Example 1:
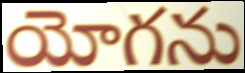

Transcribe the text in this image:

యోగను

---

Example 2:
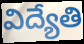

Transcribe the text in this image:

విద్యేతి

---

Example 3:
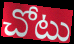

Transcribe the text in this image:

చోటు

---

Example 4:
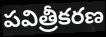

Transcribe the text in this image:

పవిత్రీకరణ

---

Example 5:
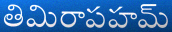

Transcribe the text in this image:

తిమిరాపహమ్